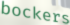
bockers